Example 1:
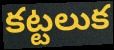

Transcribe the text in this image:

కట్టలుక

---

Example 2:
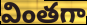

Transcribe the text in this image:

వింతగా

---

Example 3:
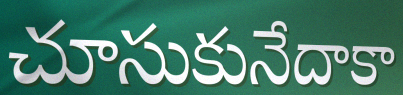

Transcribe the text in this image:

చూసుకునేదాకా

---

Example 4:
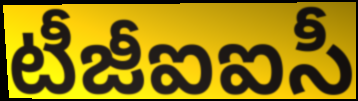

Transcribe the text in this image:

టీజీఐఐసీ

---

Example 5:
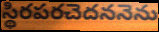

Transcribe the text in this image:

స్థిరపరచెదననెను